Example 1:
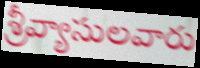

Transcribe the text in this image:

శ్రీవ్యాసులవారు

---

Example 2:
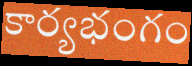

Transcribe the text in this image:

కార్యభంగం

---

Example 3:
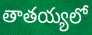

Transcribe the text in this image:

తాతయ్యలో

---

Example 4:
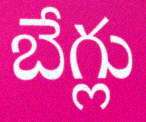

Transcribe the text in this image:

బేగ్లు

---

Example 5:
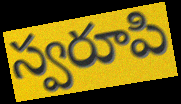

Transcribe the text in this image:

స్వరూపి